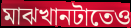
মাঝখানটাতেও